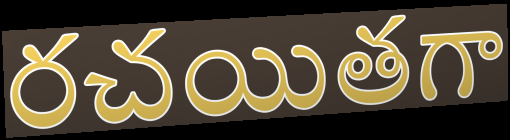
రచయితగా